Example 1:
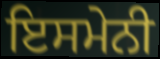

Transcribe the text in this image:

ਇਸਮੇਨੀ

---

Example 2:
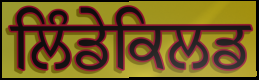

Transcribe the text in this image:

ਲਿੰਡੇਕਿਲਡ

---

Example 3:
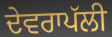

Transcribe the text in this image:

ਦੇਵਰਾਪੱਲੀ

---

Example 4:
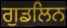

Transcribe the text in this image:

ਗੁਡਲਿਨ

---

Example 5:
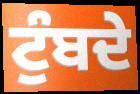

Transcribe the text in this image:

ਟੁੰਬਦੇ